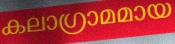
കലാഗ്രാമമായ